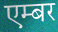
एम्बर